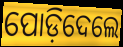
ପୋଡ଼ିଦେଲେ